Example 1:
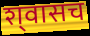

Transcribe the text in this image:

श्वासच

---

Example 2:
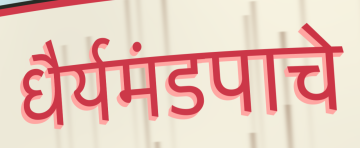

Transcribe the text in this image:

धैर्यमंडपाचे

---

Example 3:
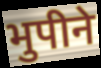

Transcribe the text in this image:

भुपीने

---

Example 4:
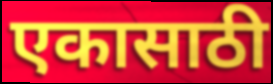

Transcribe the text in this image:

एकासाठी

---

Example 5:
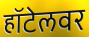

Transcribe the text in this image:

हॉटेलवर